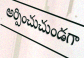
అర్పించుచుండగా